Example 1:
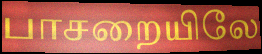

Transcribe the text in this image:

பாசறையிலே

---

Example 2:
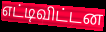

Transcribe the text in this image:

எட்டிவிட்டன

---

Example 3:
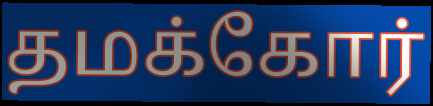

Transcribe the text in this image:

தமக்கோர்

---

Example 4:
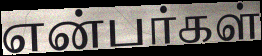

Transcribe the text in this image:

என்பர்கள்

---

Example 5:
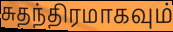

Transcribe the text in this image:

சுதந்திரமாகவும்